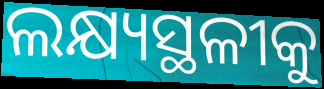
ଲକ୍ଷ୍ୟସ୍ଥଳୀକୁ